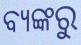
ବ୍ୟଙ୍କରୁ